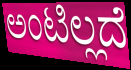
ಅಂಟಿಲ್ಲದೆ